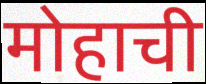
मोहाची